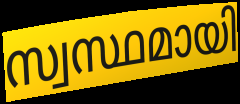
സ്വസ്ഥമായി